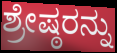
ಶ್ರೇಷ್ಠರನ್ನು